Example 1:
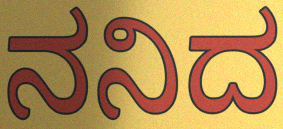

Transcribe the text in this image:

ನನಿದ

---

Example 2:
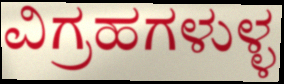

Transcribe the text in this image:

ವಿಗ್ರಹಗಳುಳ್ಳ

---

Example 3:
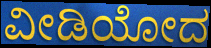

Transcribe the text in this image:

ವೀಡಿಯೋದ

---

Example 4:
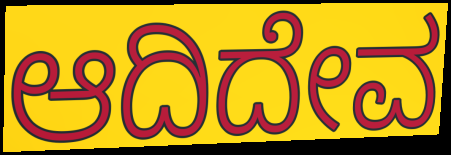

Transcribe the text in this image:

ಆದಿದೇವ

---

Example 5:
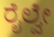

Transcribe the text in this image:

ರೈಲ್ವೇ